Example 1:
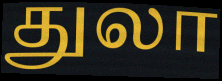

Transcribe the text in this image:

துலா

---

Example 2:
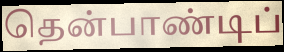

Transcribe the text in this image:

தென்பாண்டிப்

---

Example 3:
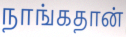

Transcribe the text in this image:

நாங்கதான்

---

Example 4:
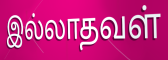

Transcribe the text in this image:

இல்லாதவள்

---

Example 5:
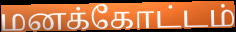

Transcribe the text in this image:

மனக்கோட்டம்